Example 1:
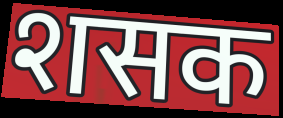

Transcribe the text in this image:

शसक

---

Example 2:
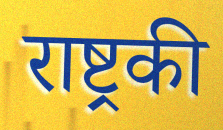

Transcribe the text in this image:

राष्ट्रकी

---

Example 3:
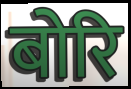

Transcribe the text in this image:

बोरि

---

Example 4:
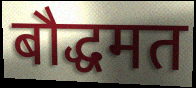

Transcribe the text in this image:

बौद्धमत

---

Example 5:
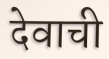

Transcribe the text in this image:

देवाची